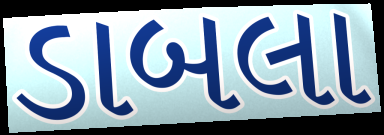
ડાબલા